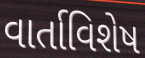
વાર્તાવિશેષ